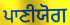
ਪਾਣੀਯੋਗ